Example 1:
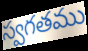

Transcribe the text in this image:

స్వగతము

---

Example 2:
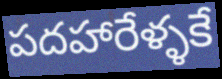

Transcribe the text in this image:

పదహారేళ్ళకే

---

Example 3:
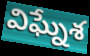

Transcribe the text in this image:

విఘ్నేశ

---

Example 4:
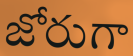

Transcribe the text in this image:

జోరుగా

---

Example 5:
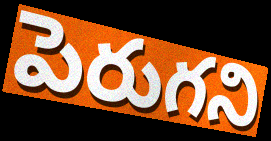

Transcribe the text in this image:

పెరుగని